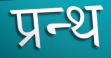
प्रन्थ